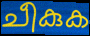
ചീകുക